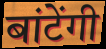
बांटेंगी